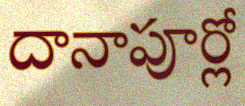
దానాపూర్లో